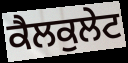
ਕੈਲਕੁਲੇਟ